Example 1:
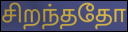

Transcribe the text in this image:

சிறந்ததோ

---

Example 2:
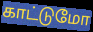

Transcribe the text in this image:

காட்டுமோ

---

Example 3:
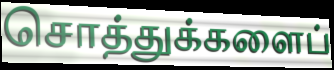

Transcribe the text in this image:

சொத்துக்களைப்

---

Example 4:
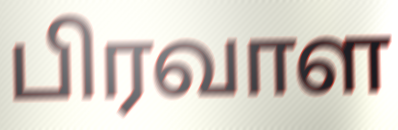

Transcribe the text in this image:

பிரவாள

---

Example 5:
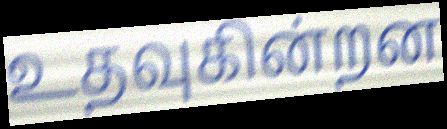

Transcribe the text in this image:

உதவுகின்றன